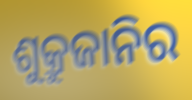
ଶୁକ୍ରୁଜାନିର